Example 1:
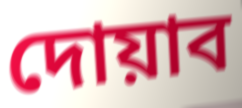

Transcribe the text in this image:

দোয়াব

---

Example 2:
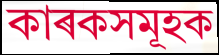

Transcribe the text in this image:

কাৰকসমূহক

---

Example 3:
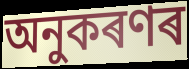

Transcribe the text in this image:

অনুকৰণৰ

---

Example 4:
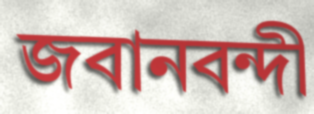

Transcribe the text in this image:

জবানবন্দী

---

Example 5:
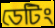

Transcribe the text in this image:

ডেটিং